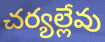
చర్యల్లేవు